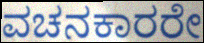
ವಚನಕಾರರೇ